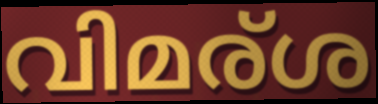
വിമര്ശ